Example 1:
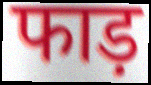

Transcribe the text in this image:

फाड़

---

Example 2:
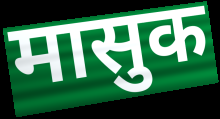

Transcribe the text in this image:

मासुक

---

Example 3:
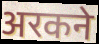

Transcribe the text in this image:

अरकने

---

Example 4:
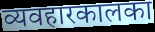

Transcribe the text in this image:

व्यवहारकालका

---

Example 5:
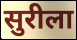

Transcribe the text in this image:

सुरीला